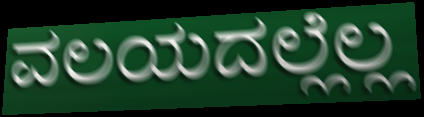
ವಲಯದಲ್ಲೆಲ್ಲ